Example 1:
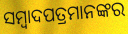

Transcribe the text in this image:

ସମ୍ୱାଦପତ୍ରମାନଙ୍କର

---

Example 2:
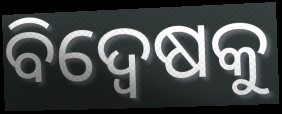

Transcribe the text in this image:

ବିଦ୍ବେଷକୁ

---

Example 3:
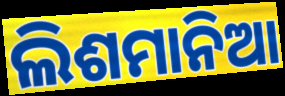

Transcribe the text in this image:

ଲିଶମାନିଆ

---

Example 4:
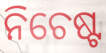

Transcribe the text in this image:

ନିଚେଷ୍ଟ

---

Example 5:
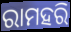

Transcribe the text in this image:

ରାମହରି